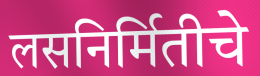
लसनिर्मितीचे